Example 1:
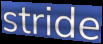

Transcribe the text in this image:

stride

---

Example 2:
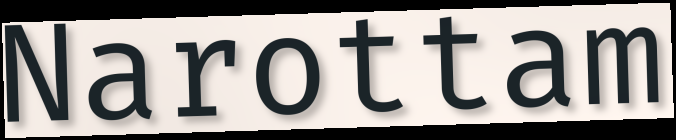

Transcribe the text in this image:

Narottam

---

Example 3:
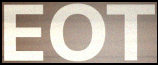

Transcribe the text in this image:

EOT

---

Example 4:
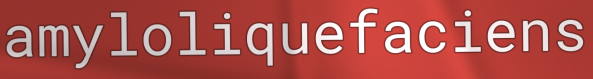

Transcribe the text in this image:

amyloliquefaciens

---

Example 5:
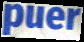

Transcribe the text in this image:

puer